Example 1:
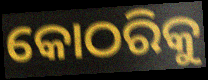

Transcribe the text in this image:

କୋଠରିକୁ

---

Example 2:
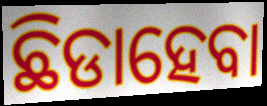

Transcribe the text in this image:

ଛିଡାହେବା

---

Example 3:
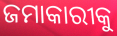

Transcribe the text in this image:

ଜମାକାରୀକୁ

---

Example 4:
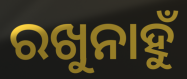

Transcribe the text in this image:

ରଖୁନାହୁଁ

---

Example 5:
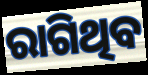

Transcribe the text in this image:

ରାଗିଥିବ